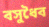
বসুধৈব